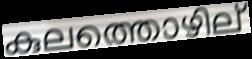
കുലത്തൊഴില്